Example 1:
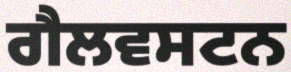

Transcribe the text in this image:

ਗੈਲਵਸਟਨ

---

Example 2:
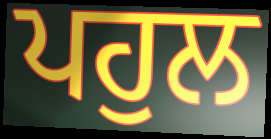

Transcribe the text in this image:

ਪਹੁਲ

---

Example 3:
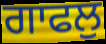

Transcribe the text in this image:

ਗਾਫਲੁ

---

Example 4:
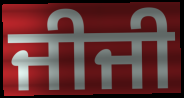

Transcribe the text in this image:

ਜੀਜੀ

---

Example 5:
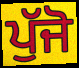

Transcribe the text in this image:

ਪੁੱਜੋ